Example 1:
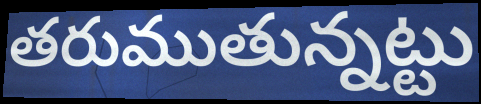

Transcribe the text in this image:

తరుముతున్నట్టు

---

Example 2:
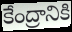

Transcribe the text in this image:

కేంద్రానికి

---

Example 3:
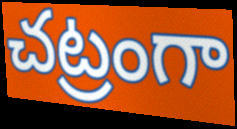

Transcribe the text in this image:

చట్రంగా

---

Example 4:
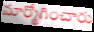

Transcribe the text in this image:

మార్మోగించారు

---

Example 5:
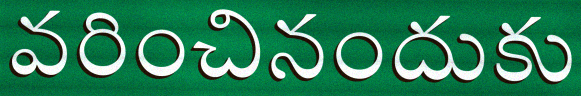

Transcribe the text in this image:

వరించినందుకు